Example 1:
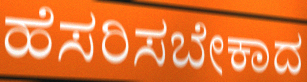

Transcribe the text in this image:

ಹೆಸರಿಸಬೇಕಾದ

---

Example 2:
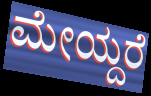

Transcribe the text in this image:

ಮೇಯ್ದರೆ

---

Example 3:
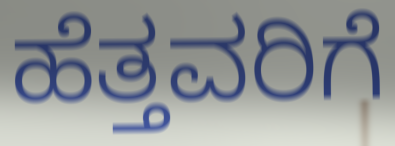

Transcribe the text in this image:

ಹೆತ್ತವರಿಗೆ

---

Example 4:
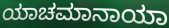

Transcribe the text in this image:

ಯಾಚಮಾನಾಯಾ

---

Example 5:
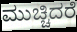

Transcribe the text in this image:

ಮುಚ್ಚಿದರೆ